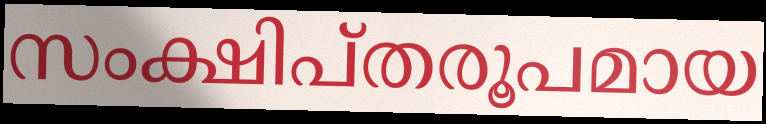
സംക്ഷിപ്തരൂപമായ